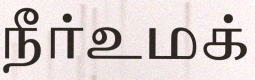
நீர்உமக்